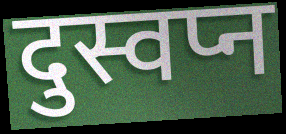
दुस्वप्न